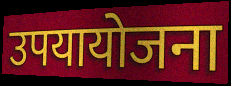
उपयायोजना